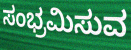
ಸಂಭ್ರಮಿಸುವ